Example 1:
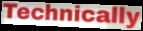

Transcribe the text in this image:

Technically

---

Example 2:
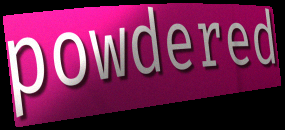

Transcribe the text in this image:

powdered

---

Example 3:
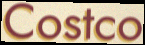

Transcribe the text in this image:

Costco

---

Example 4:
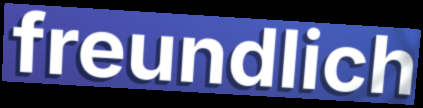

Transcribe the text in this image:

freundlich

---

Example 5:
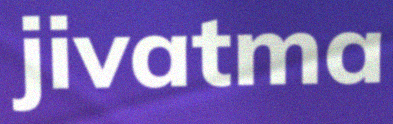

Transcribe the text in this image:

jivatma